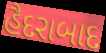
હૈદરાબાદ